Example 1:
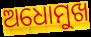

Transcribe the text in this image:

ଅଧୋମୁଖ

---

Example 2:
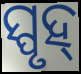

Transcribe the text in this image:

ସ୍ପୃହ୍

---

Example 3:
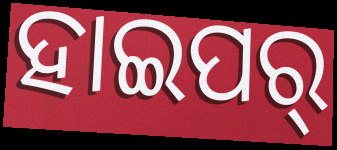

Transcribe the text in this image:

ହାଇପର୍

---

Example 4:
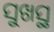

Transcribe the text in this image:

ସୁଖସ୍ଥ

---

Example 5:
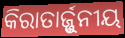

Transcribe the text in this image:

କିରାତାର୍ଜ୍ଜୁନୀୟ